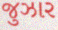
જુઝાર